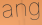
ang